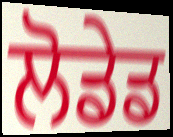
ਲੋਡੇਡ